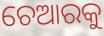
ଚେଆରକୁ